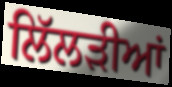
ਲਿੱਲੜੀਆਂ